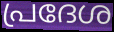
പ്രദേശ